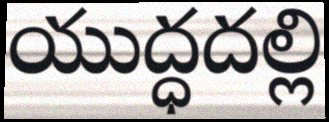
యుద్ధదల్లి